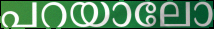
പറയാലോ